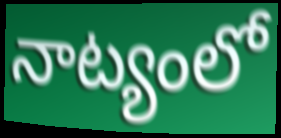
నాట్యంలో